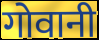
गोवानी